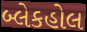
બ્લેકહોલ